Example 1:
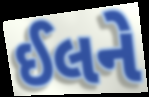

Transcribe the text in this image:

ઈલને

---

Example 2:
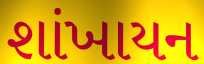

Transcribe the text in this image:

શાંખાયન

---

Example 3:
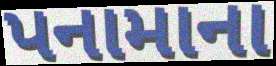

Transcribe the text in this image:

પનામાના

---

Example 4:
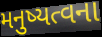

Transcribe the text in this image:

મનુષ્યત્વના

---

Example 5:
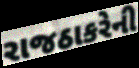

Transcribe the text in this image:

રાજઠાકરેની